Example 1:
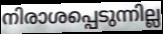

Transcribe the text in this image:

നിരാശപ്പെടുന്നില്ല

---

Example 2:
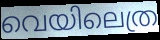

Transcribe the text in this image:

വെയിലെത്ര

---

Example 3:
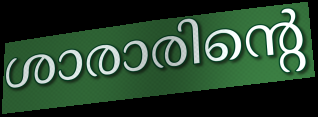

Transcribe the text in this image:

ശാരാരിന്റെ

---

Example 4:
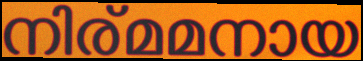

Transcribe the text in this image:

നിര്മമനായ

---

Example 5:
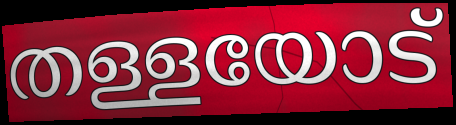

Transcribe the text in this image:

തള്ളയോട്